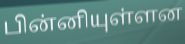
பின்னியுள்ளன